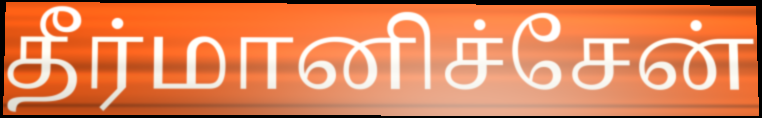
தீர்மானிச்சேன்